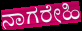
ನಾಗರೇಹಿ